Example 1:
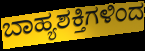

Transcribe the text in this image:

ಬಾಹ್ಯಶಕ್ತಿಗಳಿಂದ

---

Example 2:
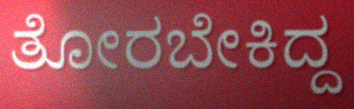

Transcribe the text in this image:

ತೋರಬೇಕಿದ್ದ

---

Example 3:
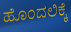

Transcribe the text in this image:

ಹೊಂದಲಿಕ್ಕೆ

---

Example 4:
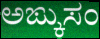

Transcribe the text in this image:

ಅಙ್ಕುಸಂ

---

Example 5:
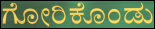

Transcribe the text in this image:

ಗೋರಿಕೊಂಡು